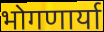
भोगणार्या